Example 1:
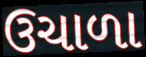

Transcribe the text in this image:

ઉચાળા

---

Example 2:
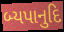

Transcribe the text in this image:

બ્યપાનુદિ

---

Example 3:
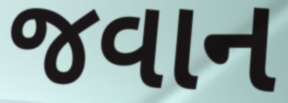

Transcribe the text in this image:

જવાન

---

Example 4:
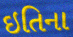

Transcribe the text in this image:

ઇતિના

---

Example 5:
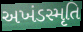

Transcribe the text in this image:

અખંડસ્મૃતિ